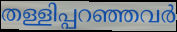
തള്ളിപ്പറഞ്ഞവർ